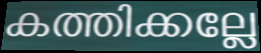
കത്തിക്കല്ലേ